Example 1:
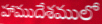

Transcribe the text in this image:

హాముదేశములో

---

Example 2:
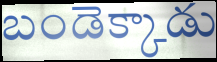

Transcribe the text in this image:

బండెక్కాడు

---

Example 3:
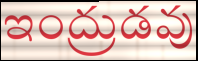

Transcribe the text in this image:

ఇంద్రుడవు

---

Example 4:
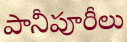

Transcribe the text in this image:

పానీపూరీలు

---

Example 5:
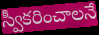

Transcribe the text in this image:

స్వీకరించాలనే